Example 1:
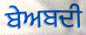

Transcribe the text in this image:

ਬੇਅਬਦੀ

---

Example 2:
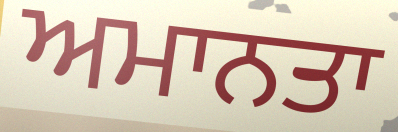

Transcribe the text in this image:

ਅਮਾਨਤਾ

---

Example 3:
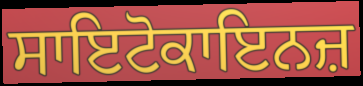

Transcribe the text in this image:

ਸਾਇਟੋਕਾਇਨਜ਼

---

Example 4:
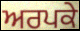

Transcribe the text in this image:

ਅਰਪਕੇ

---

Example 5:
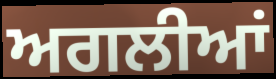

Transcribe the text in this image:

ਅਗਲੀਆਂ